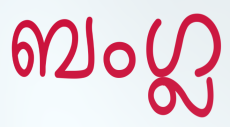
ബംഗ്ല